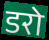
डरो